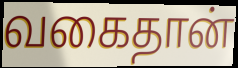
வகைதான்